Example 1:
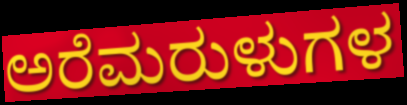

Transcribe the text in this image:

ಅರೆಮರುಳುಗಳ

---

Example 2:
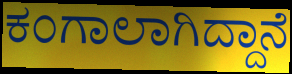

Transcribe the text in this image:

ಕಂಗಾಲಾಗಿದ್ದಾನೆ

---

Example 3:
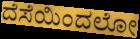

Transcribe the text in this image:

ದೆಸೆಯಿಂದಲೋ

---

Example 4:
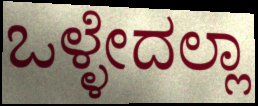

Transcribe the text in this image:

ಒಳ್ಳೇದಲ್ಲಾ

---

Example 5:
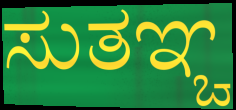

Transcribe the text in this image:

ಸುತಞ್ಚ